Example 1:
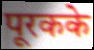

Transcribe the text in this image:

पूरकके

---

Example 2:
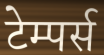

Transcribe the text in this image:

टेम्पर्स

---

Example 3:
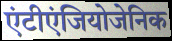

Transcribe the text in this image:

एंटीएंजियोजेनिक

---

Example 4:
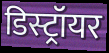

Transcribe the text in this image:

डिस्‍ट्रॉयर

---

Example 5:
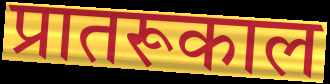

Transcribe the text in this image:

प्रातरूकाल